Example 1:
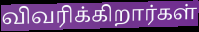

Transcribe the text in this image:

விவரிக்கிறார்கள்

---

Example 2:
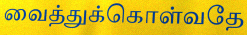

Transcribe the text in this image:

வைத்துக்கொள்வதே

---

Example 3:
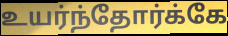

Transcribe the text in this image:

உயர்ந்தோர்க்கே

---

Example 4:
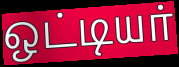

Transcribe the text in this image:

ஒட்டியர்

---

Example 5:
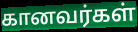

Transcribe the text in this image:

கானவர்கள்